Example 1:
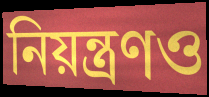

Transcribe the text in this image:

নিয়ন্ত্রণও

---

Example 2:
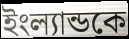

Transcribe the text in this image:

ইংল্যান্ডকে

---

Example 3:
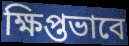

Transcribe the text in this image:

ক্ষিপ্তভাবে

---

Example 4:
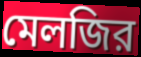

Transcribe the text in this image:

মেলজির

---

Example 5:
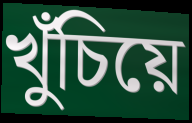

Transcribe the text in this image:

খুঁচিয়ে